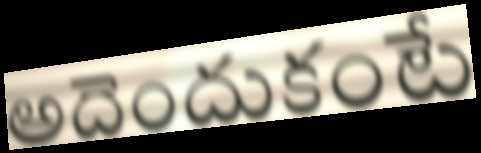
అదెందుకంటే